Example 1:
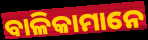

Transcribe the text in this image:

ବାଳିକାମାନେ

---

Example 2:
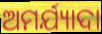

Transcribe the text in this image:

ଅମର୍ଯ୍ୟାଦା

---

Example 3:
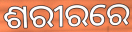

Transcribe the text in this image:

ଶରୀରରେ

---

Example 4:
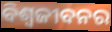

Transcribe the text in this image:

ବିଶ୍ଵଜୀବନର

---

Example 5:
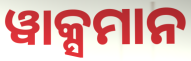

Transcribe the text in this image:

ୱାକ୍ସମାନ